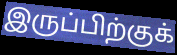
இருப்பிற்குக்